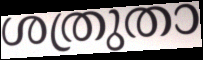
ശത്രുതാ